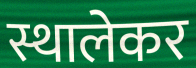
स्थालेकर